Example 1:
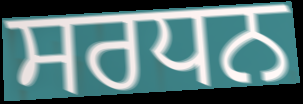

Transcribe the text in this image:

ਸਰਧਨ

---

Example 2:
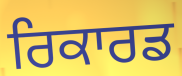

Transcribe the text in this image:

ਰਿਕਾਰਡ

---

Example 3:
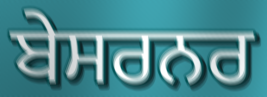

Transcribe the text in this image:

ਬੇਸਰਨਰ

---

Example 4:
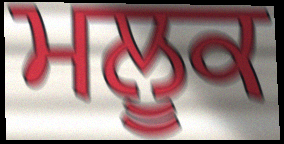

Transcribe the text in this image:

ਮਲੂਕ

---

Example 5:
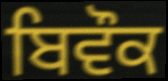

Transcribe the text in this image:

ਬਿਵੌਕ